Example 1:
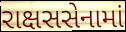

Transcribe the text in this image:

રાક્ષસસેનામાં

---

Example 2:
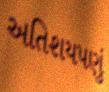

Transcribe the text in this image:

અતિશયપણું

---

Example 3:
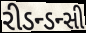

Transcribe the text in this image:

રીડન્ડન્સી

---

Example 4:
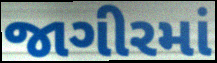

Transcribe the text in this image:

જાગીરમાં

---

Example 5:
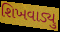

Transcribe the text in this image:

શિખવાડ્યુ